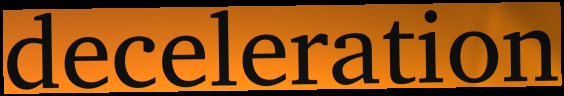
deceleration